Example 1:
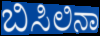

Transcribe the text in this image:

ಬಿಸಿಲಿನಾ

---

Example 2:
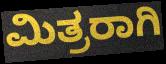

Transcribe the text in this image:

ಮಿತ್ರರಾಗಿ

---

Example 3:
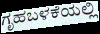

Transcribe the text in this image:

ಗೃಹಬಳಕೆಯಲ್ಲಿ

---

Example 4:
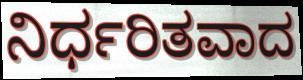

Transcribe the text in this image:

ನಿರ್ಧರಿತವಾದ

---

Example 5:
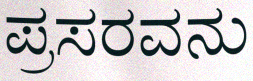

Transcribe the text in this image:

ಪ್ರಸರವನು